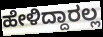
ಹೇಳಿದ್ದಾರಲ್ಲ